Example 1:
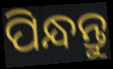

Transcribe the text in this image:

ପିନ୍ଧନ୍ତୁ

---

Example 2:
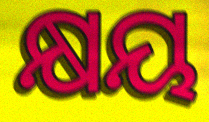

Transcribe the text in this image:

କ୍ଷୟ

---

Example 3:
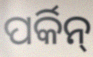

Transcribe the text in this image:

ପର୍କିନ୍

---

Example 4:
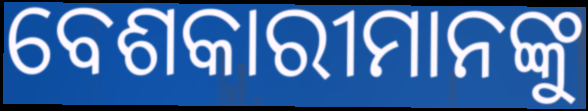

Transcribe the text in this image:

ବେଶକାରୀମାନଙ୍କୁ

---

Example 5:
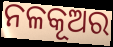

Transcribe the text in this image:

ନଳକୂଅର